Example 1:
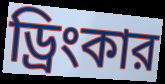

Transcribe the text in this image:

ড্রিংকার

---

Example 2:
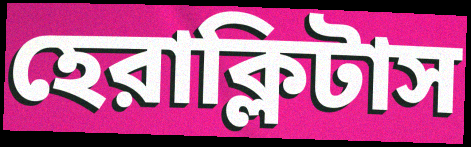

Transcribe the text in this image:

হেরাক্লিটাস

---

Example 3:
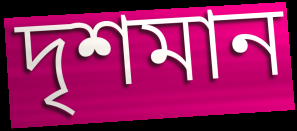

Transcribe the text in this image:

দৃশমান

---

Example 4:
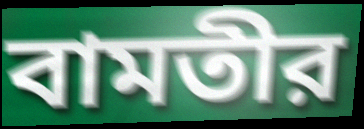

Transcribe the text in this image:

বামতীর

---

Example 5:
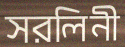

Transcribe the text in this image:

সরলিনী